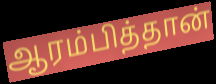
ஆரம்பித்தான்